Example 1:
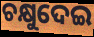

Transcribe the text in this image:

ଚକ୍ଷୁଦେଇ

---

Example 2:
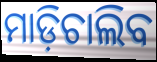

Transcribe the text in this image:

ମାଡ଼ିଚାଲିବ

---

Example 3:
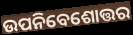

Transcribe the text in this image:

ଉପନିବେଶୋତ୍ତର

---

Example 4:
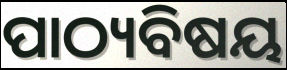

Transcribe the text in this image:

ପାଠ୍ୟବିଷୟ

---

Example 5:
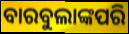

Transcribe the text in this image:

ବାରବୁଲାଙ୍କପରି